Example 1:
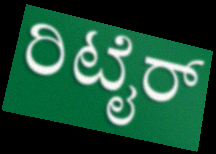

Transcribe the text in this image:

ರಿಟೈರ್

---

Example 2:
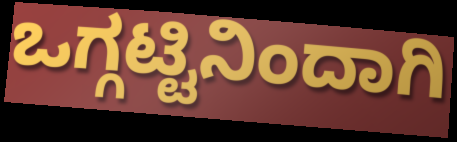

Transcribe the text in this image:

ಒಗ್ಗಟ್ಟಿನಿಂದಾಗಿ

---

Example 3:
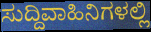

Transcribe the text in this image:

ಸುದ್ದಿವಾಹಿನಿಗಳಲ್ಲಿ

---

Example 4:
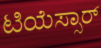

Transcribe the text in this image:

ಟಿಯೆಸ್ಸಾರ್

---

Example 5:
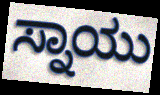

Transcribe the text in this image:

ಸ್ನಾಯು